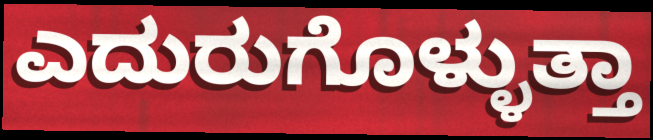
ಎದುರುಗೊಳ್ಳುತ್ತಾ